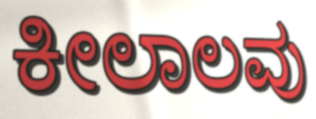
ಕೀಲಾಲವು